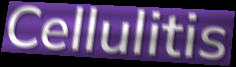
Cellulitis